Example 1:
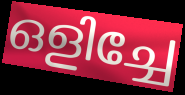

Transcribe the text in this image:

ഒളിച്ചേ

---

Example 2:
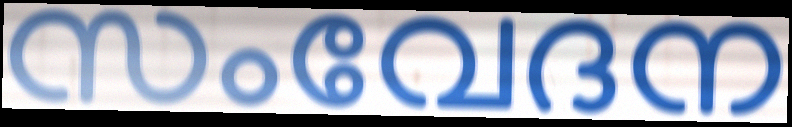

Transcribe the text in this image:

സംവേദന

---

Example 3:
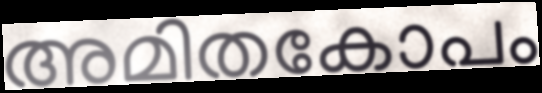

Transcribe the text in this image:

അമിതകോപം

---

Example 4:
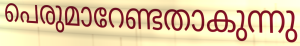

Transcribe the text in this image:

പെരുമാറേണ്ടതാകുന്നു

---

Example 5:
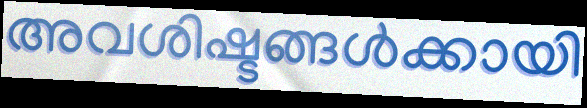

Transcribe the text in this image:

അവശിഷ്ടങ്ങൾക്കായി